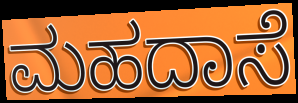
ಮಹದಾಸೆ